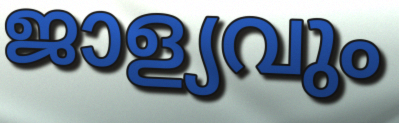
ജാള്യവും